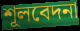
শূলবেদনা